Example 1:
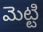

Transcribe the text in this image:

మెట్టి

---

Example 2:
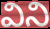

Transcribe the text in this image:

విని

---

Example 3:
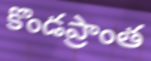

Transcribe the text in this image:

కొండప్రాంత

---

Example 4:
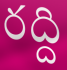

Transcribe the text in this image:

రద్ది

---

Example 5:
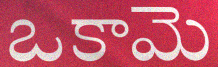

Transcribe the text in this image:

ఒకామె